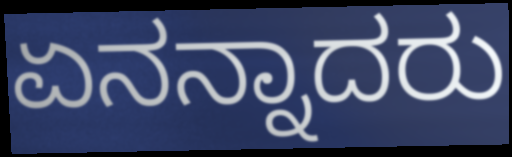
ಏನನ್ನಾದರು